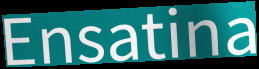
Ensatina